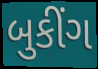
બુકીંગ